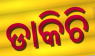
ଡାକିଚି